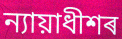
ন্যায়াধীশৰ